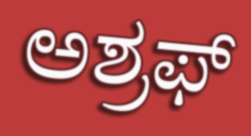
ಅಶ್ರಫ್